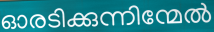
ഓരടിക്കുന്നിന്മേൽ